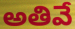
అతివే